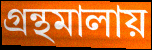
গ্রন্থমালায়